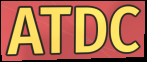
ATDC